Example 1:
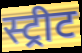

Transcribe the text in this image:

स्ट्रीट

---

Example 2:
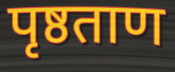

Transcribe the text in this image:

पृष्ठताण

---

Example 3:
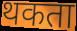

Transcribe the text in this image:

थकता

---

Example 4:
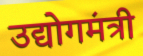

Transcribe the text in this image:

उद्योगमंत्री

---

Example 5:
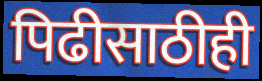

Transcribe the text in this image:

पिढीसाठीही